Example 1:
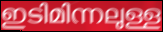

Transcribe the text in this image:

ഇടിമിന്നലുള്ള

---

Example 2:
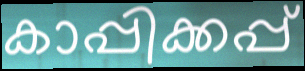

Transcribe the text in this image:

കാപ്പിക്കപ്പ്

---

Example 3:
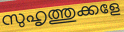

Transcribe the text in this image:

സുഹൃത്തുക്കളേ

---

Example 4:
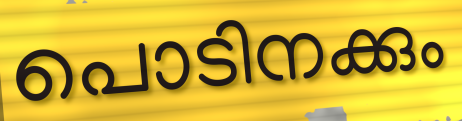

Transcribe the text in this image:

പൊടിനക്കും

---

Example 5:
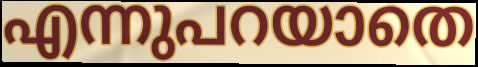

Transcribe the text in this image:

എന്നുപറയാതെ